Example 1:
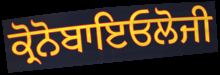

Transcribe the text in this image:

ਕ੍ਰੋਨੋਬਾਇਓਲੋਜੀ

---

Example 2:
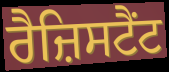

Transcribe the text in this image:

ਰੈਜ਼ਿਸਟੈਂਟ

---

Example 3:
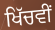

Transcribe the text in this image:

ਖਿੱਚਵੀਂ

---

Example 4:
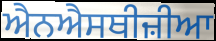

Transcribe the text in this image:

ਐਨਐਸਥੀਜ਼ੀਆ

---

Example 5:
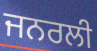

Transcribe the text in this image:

ਜਨਰਲੀ